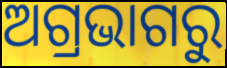
ଅଗ୍ରଭାଗରୁ